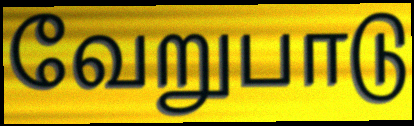
வேறுபாடு